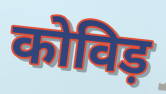
कोविड़